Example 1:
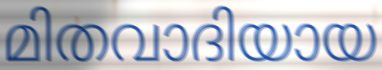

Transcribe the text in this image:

മിതവാദിയായ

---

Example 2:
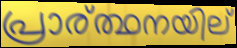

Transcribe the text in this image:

പ്രാര്ത്ഥനയില്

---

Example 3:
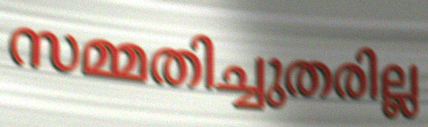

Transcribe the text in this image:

സമ്മതിച്ചുതരില്ല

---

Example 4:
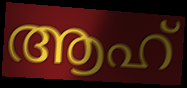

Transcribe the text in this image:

ആഹ്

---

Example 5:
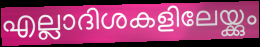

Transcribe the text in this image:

എല്ലാദിശകളിലേയ്ക്കും